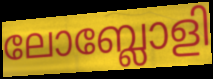
ലോബ്ലോളി